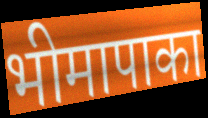
भीमापाका